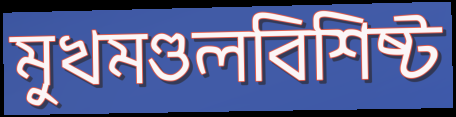
মুখমণ্ডলবিশিষ্ট